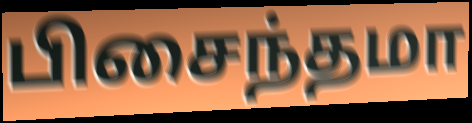
பிசைந்தமா